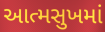
આત્મસુખમાં